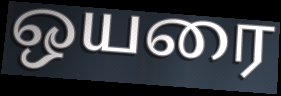
ஒயரை